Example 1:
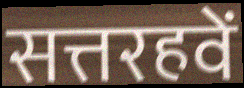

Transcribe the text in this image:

सत्तरहवें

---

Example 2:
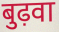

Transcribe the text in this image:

बुढ़वा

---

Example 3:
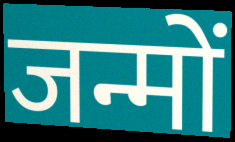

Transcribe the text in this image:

जन्मों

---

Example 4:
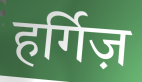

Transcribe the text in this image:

हर्गिज़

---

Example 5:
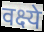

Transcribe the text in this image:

वक्ष्ये